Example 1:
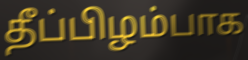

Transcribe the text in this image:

தீப்பிழம்பாக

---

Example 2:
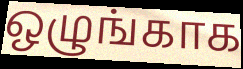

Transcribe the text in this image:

ஒழுங்காக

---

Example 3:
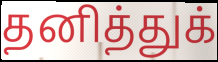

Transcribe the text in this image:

தனித்துக்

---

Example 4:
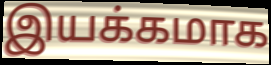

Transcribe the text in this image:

இயக்கமாக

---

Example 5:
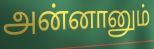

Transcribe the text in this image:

அன்னானும்